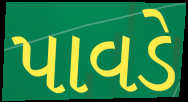
પાવડે